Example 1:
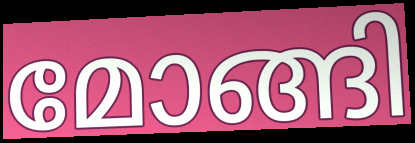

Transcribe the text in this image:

മോങ്ങി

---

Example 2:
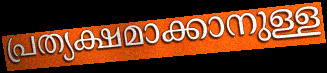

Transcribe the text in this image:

പ്രത്യക്ഷമാക്കാനുള്ള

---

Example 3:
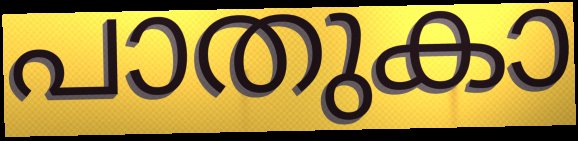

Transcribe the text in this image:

പാതുകാ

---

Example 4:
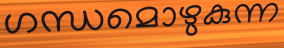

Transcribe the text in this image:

ഗന്ധമൊഴുകുന്ന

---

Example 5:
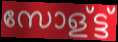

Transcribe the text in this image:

സോള്ട്ട്